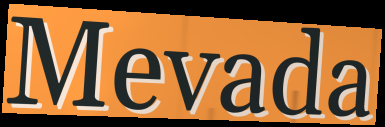
Mevada